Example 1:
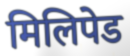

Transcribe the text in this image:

मिलिपेड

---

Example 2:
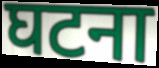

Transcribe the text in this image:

घटना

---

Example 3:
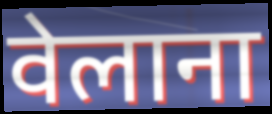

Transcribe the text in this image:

वेलाना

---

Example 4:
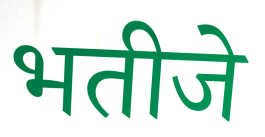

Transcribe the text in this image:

भतीजे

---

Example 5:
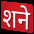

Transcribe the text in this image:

शने